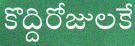
కొద్దిరోజులకే